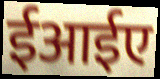
ईआईए